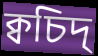
ক্বচিদ্